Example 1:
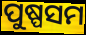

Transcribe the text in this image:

ପୁଷ୍ପସମ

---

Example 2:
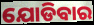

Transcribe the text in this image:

ଯୋଡିବାର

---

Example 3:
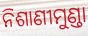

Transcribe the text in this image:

ନିଶାଣୀମୁଣ୍ଡା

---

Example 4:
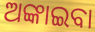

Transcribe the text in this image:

ଅଙ୍କାଇବା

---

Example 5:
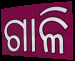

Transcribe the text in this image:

ଗାଳି